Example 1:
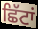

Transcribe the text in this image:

ਛਿੱਟਾਂ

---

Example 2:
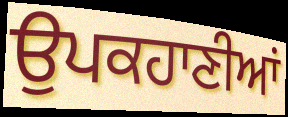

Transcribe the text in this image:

ਉਪਕਹਾਣੀਆਂ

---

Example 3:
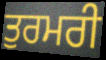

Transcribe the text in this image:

ਤੁਰਮਰੀ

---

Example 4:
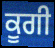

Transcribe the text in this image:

ਕੂਗੀ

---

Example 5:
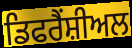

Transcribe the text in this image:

ਡਿਫਰੈਂਸ਼ੀਅਲ